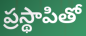
ప్రస్థాపితో